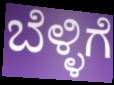
ಬೆಳ್ಳಿಗೆ